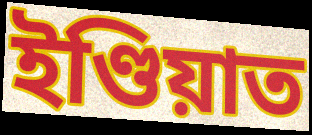
ইণ্ডিয়াত